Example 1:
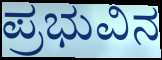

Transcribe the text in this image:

ಪ್ರಭುವಿನ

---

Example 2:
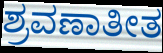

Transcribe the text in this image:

ಶ್ರವಣಾತೀತ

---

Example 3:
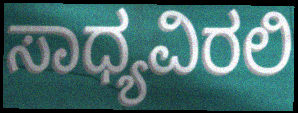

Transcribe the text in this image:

ಸಾಧ್ಯವಿರಲಿ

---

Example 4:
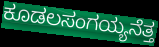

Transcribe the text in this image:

ಕೂಡಲಸಂಗಯ್ಯನೆತ್ತ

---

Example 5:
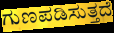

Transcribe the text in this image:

ಗುಣಪಡಿಸುತ್ತದೆ